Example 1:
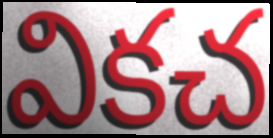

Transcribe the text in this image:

వికచ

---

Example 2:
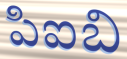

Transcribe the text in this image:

పిఐబి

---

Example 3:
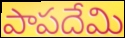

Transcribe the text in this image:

పాపదేమి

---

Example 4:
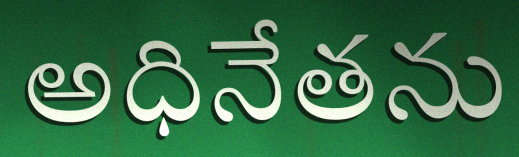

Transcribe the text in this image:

అధినేతను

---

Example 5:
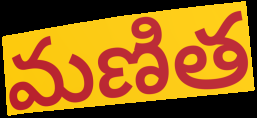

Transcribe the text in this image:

మణిత